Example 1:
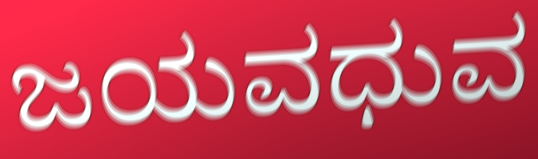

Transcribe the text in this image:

ಜಯವಧುವ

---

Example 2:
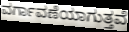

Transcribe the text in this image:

ವರ್ಗಾವಣೆಯಾಗುತ್ತವೆ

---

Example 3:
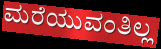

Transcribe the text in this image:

ಮರೆಯುವಂತಿಲ್ಲ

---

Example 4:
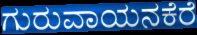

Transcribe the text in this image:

ಗುರುವಾಯನಕೆರೆ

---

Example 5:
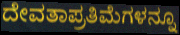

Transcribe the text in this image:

ದೇವತಾಪ್ರತಿಮೆಗಳನ್ನೂ